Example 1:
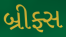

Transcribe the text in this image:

બ્રીફ્સ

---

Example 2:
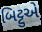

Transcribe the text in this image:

બિટ્ટુએ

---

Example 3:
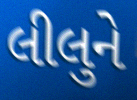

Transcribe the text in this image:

લીલુને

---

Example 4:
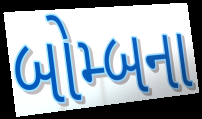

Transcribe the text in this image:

બોમ્બના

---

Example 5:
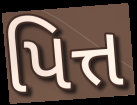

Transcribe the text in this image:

પિત્ત